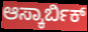
ಆಸ್ಕಾರ್ಬಿಕ್